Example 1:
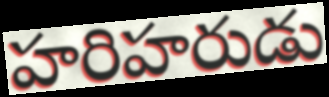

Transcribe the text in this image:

హరిహరుడు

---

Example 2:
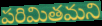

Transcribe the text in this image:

పరిమితమని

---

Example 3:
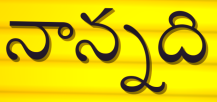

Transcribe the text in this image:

నాన్నది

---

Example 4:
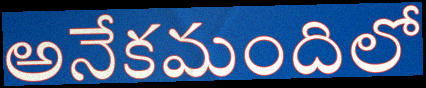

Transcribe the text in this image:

అనేకమందిలో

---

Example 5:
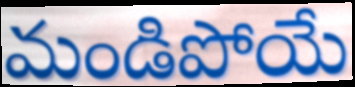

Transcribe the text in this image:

మండిపోయే